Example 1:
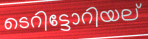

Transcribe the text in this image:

ടെറിട്ടോറിയല്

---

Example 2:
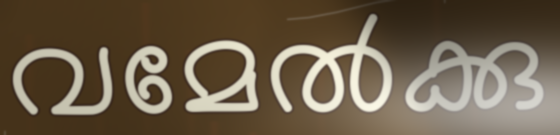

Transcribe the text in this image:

വമേൽക്കു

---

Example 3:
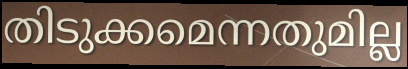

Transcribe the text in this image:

തിടുക്കമെന്നതുമില്ല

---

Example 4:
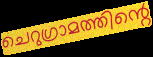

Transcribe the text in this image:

ചെറുഗ്രാമത്തിന്റെ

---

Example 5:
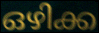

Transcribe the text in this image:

ഒഴിക്ക